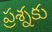
ప్రశ్నకు